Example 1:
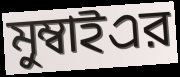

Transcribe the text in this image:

মুম্বাইএর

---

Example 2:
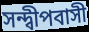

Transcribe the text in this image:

সন্দ্বীপবাসী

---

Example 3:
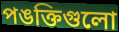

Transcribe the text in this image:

পঙক্তিগুলো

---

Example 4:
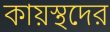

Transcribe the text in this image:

কায়স্থদের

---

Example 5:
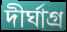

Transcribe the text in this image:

দীর্ঘাগ্র